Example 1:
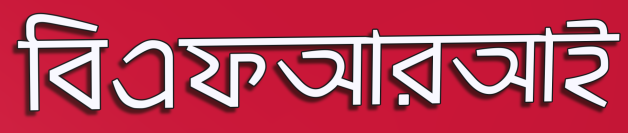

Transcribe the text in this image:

বিএফআরআই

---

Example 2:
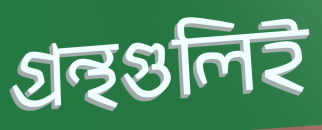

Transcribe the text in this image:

গ্রন্থগুলিই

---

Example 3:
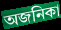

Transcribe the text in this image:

অজনিকা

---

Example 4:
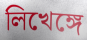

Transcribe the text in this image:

লিখেঙ্গে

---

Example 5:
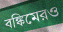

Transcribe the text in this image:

বঙ্কিমেরও